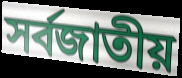
সর্বজাতীয়